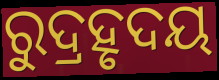
ରୁଦ୍ରହୃଦୟ